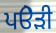
ਪੳੇੜੀ